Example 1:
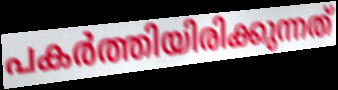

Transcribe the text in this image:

പകർത്തിയിരിക്കുന്നത്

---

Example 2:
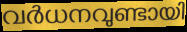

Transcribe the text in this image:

വർധനവുണ്ടായി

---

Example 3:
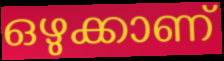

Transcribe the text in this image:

ഒഴുക്കാണ്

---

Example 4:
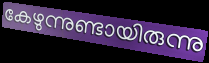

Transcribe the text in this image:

കേഴുന്നുണ്ടായിരുന്നു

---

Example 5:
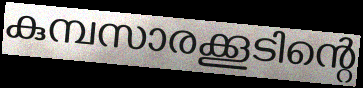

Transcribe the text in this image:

കുമ്പസാരക്കൂടിന്റെ